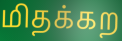
மிதக்கற